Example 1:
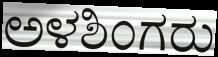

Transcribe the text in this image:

ಅಳಶಿಂಗರು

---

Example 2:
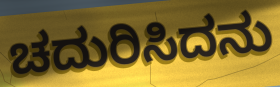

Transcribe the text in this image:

ಚದುರಿಸಿದನು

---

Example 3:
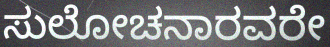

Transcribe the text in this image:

ಸುಲೋಚನಾರವರೇ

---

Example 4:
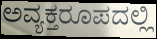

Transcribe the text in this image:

ಅವ್ಯಕ್ತರೂಪದಲ್ಲಿ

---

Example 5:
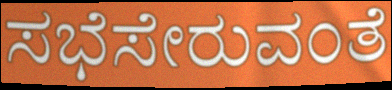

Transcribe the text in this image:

ಸಭೆಸೇರುವಂತೆ